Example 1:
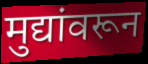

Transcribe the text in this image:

मुद्यांवरून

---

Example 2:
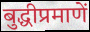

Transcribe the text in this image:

बुद्धीप्रमाणें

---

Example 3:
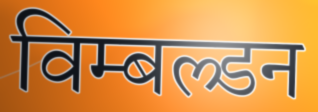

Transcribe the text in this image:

विम्बल्डन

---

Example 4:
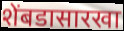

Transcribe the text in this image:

शेंबडासारखा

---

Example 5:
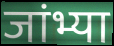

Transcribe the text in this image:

जांभ्या